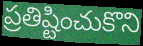
ప్రతిష్టించుకొని